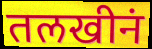
तलखीनं